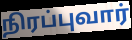
நிரப்புவார்